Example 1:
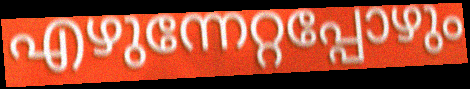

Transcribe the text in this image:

എഴുന്നേറ്റപ്പോഴും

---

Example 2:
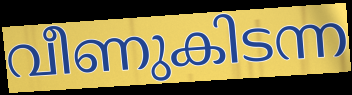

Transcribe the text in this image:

വീണുകിടന്ന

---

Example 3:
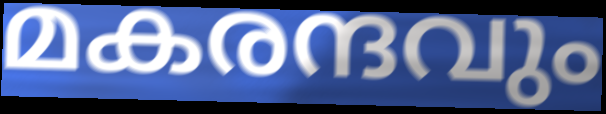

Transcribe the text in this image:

മകരന്ദവും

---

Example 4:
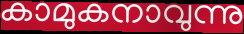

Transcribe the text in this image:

കാമുകനാവുന്നു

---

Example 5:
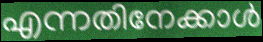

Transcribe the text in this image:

എന്നതിനേക്കാൾ